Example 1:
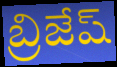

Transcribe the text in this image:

బ్రిజేష్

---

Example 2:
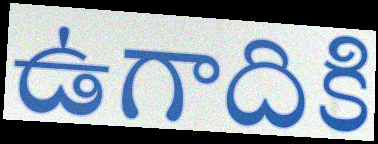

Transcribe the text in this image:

ఉగాదికి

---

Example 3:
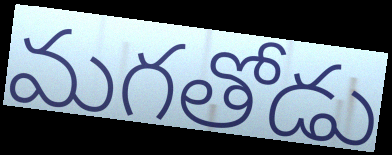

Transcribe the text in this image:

మగతోడు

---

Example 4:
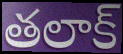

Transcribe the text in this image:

తలాక్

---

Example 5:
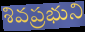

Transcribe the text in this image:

శివప్రభుని